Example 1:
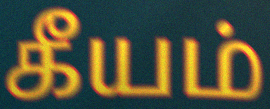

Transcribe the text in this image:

கீயம்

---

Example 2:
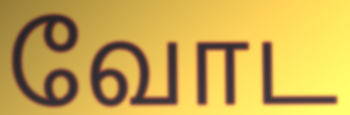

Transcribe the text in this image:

வோட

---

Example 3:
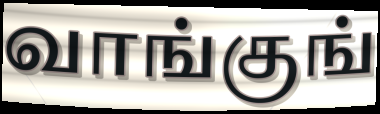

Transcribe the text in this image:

வாங்குங்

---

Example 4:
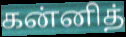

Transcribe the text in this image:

கன்னித்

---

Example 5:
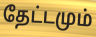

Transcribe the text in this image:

தேட்டமும்